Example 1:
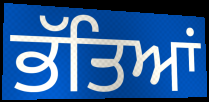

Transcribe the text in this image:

ਭੱਤਿਆਂ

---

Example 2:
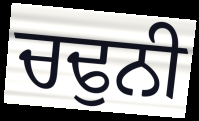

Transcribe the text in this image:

ਚਢੁਨੀ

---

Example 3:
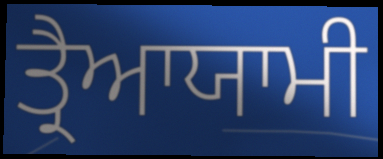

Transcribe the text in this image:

ਤ੍ਰੈਆਯਾਮੀ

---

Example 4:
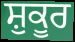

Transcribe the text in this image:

ਸ਼ੁਕੂਰ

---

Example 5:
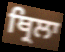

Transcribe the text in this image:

ਥ੍ਰਿਲਾ